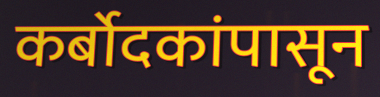
कर्बोदकांपासून